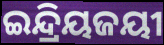
ଇନ୍ଦ୍ରିୟଜୟୀ